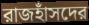
রাজহাঁসদের